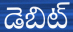
డెబిట్